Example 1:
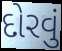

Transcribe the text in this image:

દોરવું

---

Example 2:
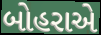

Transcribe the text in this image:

બોહરાએ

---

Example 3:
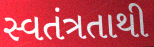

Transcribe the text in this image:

સ્વતંત્રતાથી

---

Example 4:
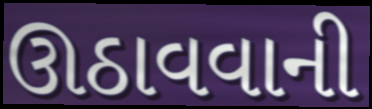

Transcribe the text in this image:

ઊઠાવવાની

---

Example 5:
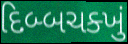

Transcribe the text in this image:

દિબ્બચક્ખું